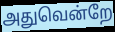
அதுவென்றே